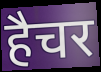
हैचर